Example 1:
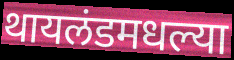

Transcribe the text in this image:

थायलंडमधल्या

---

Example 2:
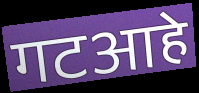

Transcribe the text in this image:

गटआहे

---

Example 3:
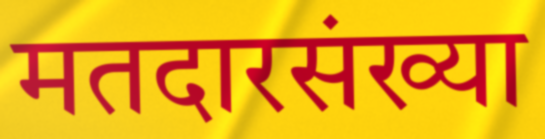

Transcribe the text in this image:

मतदारसंख्या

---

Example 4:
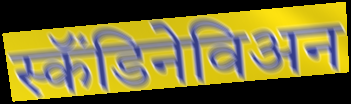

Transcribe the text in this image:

स्कॅंडिनेविअन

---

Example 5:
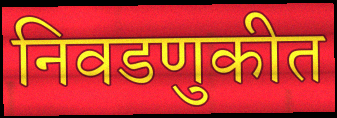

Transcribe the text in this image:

निवडणुकीत